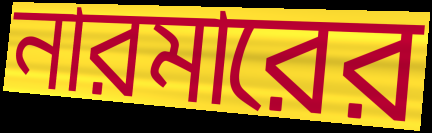
নারমারের